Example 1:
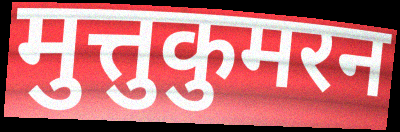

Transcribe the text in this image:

मुत्तुकुमरन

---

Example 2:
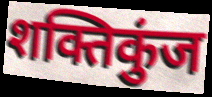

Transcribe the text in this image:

शक्तिकुंज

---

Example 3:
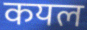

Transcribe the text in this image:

कयल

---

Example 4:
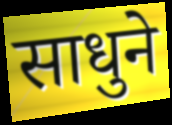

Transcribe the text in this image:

साधुने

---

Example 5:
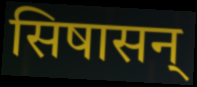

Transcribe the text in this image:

सिषासन्